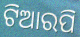
ଟିଆରପି